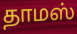
தாமஸ்